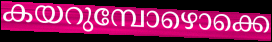
കയറുമ്പോഴൊക്കെ